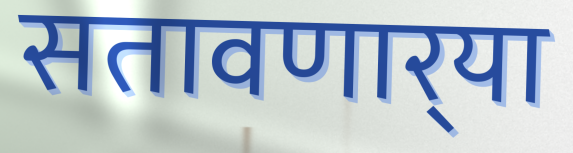
सतावणार्‍या